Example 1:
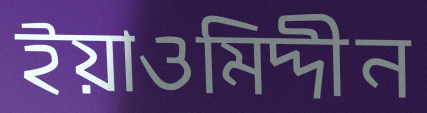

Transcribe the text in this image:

ইয়াওমিদ্দীন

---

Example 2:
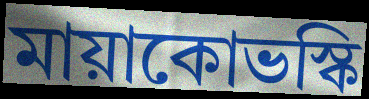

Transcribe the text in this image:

মায়াকোভস্কি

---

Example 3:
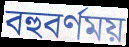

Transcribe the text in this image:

বহুবর্ণময়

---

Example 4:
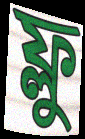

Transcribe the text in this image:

ফ্লু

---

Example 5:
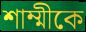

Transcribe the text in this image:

শাম্মীকে